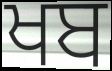
ਖਬ